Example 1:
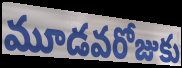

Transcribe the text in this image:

మూడవరోజుకు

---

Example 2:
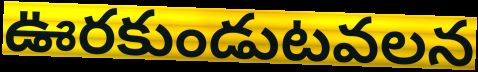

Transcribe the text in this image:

ఊరకుండుటవలన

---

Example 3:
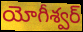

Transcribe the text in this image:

యోగీశ్వర్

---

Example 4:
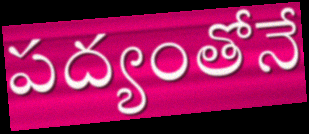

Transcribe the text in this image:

పద్యంతోనే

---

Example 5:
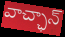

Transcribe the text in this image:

వాచ్ఛాన్